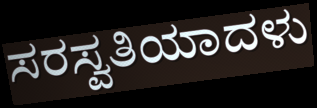
ಸರಸ್ವತಿಯಾದಳು